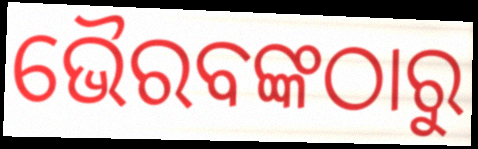
ଭୈରବଙ୍କଠାରୁ